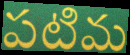
పటిమ